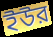
ইউর